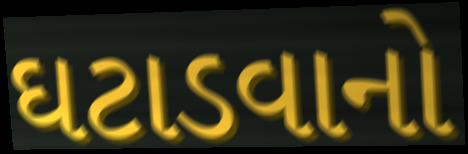
ઘટાડવાનો